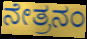
ನೇತ್ರನಂ